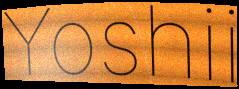
Yoshii